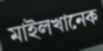
মাইলখানেক